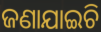
ଜଣାଯାଇଚି